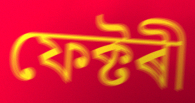
ফেক্টৰী